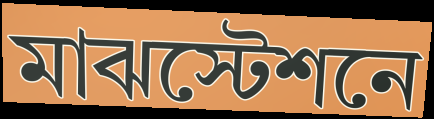
মাঝস্টেশনে